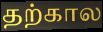
தற்கால